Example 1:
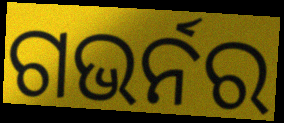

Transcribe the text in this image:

ଗଭର୍ନର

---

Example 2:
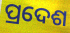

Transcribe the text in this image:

ପ୍ରଦେଶ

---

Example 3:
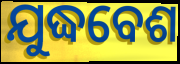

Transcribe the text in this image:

ଯୁଦ୍ଧବେଶ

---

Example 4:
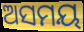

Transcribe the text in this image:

ଅସମୟ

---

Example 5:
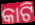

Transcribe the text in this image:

କାଟି